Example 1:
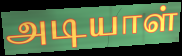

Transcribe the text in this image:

அடியாள்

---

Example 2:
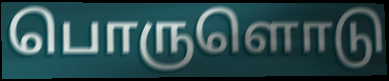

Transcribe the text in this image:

பொருளொடு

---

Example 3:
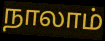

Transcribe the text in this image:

நாலாம்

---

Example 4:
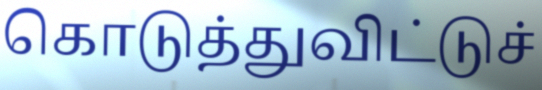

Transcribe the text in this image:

கொடுத்துவிட்டுச்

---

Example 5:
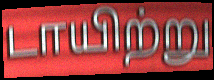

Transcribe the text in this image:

டாயிற்று